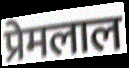
प्रेमलाल